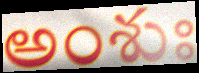
అంశుః